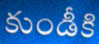
కుండీకి